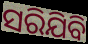
ସରିଯିବି